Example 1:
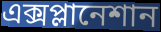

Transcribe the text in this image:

এক্সপ্লানেশান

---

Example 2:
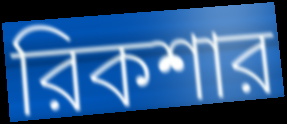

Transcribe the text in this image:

রিকশার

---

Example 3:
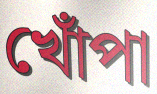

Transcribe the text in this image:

খোঁপা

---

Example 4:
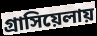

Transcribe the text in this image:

গ্রাসিয়েলায়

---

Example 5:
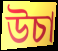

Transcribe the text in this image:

উচা